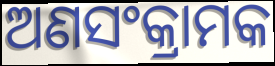
ଅଣସଂକ୍ରାମକ